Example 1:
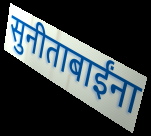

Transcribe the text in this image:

सुनीताबाईंना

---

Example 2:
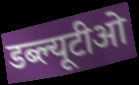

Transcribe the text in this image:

डब्ल्यूटीओ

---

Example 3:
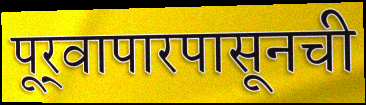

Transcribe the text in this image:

पूर्वापारपासूनची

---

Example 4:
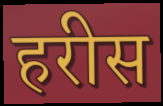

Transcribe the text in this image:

हरीस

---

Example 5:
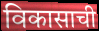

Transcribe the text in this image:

विकासाची